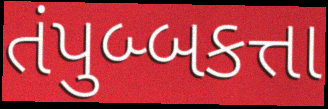
તંપુબ્બકત્તા